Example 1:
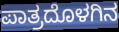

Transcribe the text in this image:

ಪಾತ್ರದೊಳಗಿನ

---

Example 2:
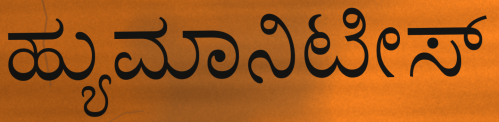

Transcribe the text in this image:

ಹ್ಯುಮಾನಿಟೀಸ್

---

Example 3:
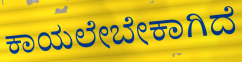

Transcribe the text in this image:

ಕಾಯಲೇಬೇಕಾಗಿದೆ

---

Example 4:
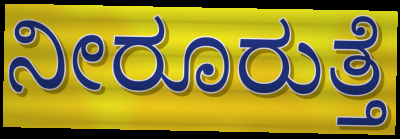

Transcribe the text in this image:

ನೀರೂರುತ್ತೆ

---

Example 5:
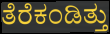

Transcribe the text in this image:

ತೆರೆಕಂಡಿತ್ತು